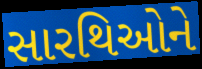
સારથિઓને